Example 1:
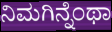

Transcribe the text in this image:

ನಿಮಗಿನ್ನೆಂಥಾ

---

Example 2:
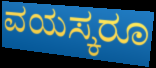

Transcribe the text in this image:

ವಯಸ್ಕರೂ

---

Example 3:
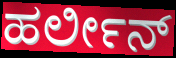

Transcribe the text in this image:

ಹರ್ಲೀನ್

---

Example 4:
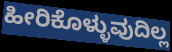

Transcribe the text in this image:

ಹೀರಿಕೊಳ್ಳುವುದಿಲ್ಲ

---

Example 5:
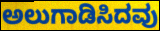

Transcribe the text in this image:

ಅಲುಗಾಡಿಸಿದವು